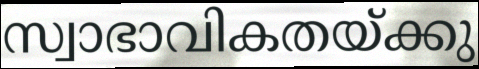
സ്വാഭാവികതയ്ക്കു